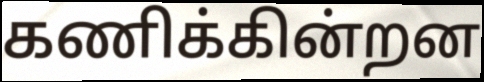
கணிக்கின்றன